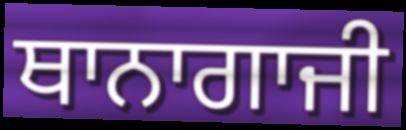
ਥਾਨਾਗਾਜੀ